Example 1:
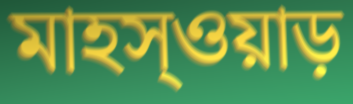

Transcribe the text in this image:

মাহস্ওয়াড়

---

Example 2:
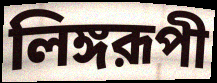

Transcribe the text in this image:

লিঙ্গরূপী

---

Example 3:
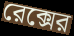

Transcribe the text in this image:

রেক্সের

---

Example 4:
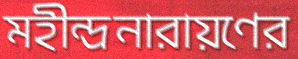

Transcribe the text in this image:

মহীন্দ্রনারায়ণের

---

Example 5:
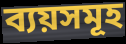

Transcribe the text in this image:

ব্যয়সমূহ